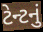
ટેન્ટનું